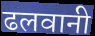
ढलवानी